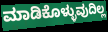
ಮಾಡಿಕೊಳ್ಳುವುದಿಲ್ಲ